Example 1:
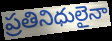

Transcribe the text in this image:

ప్రతినిధులైనా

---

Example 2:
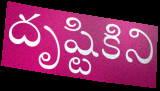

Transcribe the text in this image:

దృష్టికిని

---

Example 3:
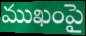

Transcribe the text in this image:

ముఖంపై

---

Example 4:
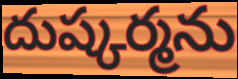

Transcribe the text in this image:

దుష్కర్మను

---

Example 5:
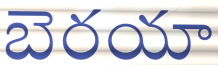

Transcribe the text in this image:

బెరయా